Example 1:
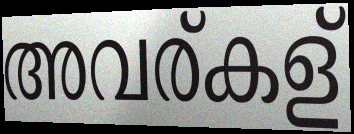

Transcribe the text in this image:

അവര്കള്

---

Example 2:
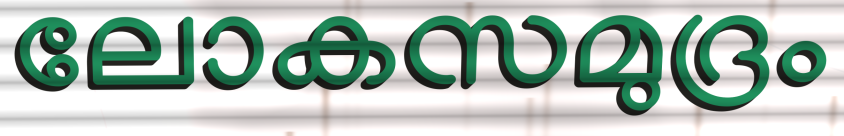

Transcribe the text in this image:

ലോകസമുദ്രം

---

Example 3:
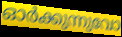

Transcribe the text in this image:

ഓർക്കുന്നുവോ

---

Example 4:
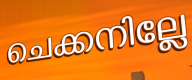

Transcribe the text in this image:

ചെക്കനില്ലേ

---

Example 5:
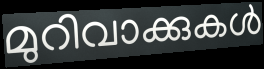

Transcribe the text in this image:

മുറിവാക്കുകൾ